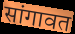
सांगावत